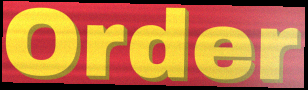
Order